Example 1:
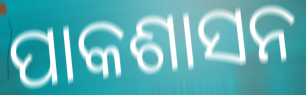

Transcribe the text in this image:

ପାକଶାସନ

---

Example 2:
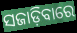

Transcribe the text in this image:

ସଜାଡ଼ିବାରେ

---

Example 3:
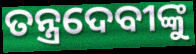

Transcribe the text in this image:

ତନ୍ତ୍ରଦେବୀଙ୍କୁ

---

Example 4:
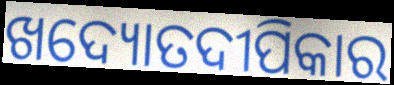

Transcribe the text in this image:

ଖଦ୍ୟୋତଦୀପିକାର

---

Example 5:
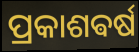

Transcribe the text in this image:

ପ୍ରକାଶଵର୍ଷ